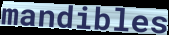
mandibles